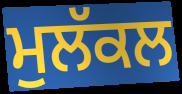
ਮੁਲੱਕਲ